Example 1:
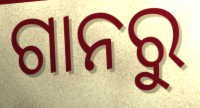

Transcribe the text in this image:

ଗାନରୁ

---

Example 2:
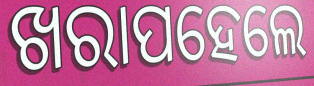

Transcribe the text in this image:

ଖରାପହେଲେ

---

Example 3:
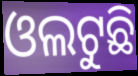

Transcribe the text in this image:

ଓଲଟୁଛି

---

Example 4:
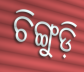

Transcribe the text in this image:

ଚିଙ୍ଗୁଡ଼ି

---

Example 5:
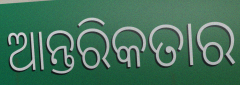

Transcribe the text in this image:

ଆନ୍ତରିକତାର